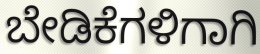
ಬೇಡಿಕೆಗಳಿಗಾಗಿ